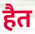
हैत